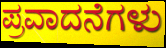
ಪ್ರವಾದನೆಗಳು